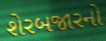
શેરબજારનો